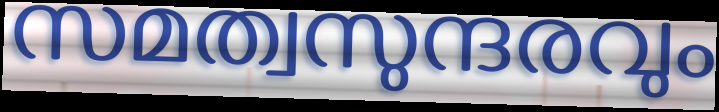
സമത്വസുന്ദരവും